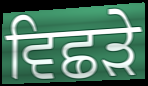
ਵਿਛੜੇ